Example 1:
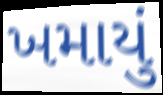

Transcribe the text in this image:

ખમાયું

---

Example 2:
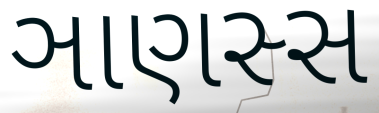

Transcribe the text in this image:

ઞાણસ્સ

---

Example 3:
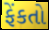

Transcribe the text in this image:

ફેંકતો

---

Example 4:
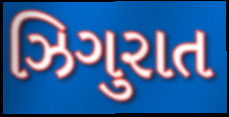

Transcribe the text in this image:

ઝિગુરાત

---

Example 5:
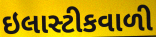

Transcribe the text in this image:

ઇલાસ્ટીકવાળી